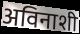
अविनाशी